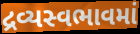
દ્રવ્યસ્વભાવમાં